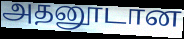
அதனூடான